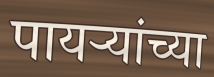
पायर्‍यांच्या